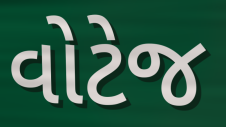
વોટેજ